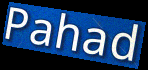
Pahad